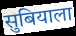
सुबियाला